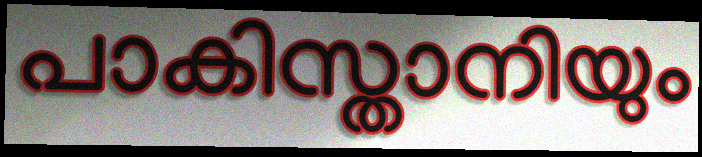
പാകിസ്താനിയും